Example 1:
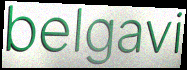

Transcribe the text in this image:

belgavi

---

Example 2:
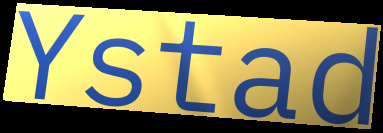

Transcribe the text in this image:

Ystad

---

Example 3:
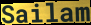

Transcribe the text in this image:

Sailam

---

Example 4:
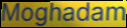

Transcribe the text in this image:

Moghadam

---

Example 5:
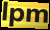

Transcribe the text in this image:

lpm